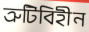
ত্রুটিবিহীন